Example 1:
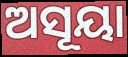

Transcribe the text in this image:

ଅସୂୟା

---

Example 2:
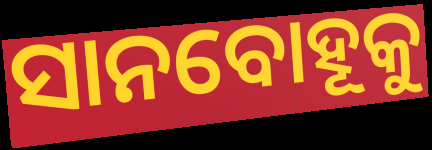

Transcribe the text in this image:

ସାନବୋହୂକୁ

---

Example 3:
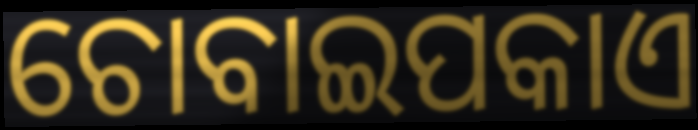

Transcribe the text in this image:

ଚୋବାଇପକାଏ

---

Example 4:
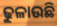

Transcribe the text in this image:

ଢୁଳାଉଛି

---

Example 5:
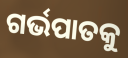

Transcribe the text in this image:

ଗର୍ଭପାତକୁ